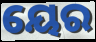
ୟେର